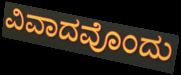
ವಿವಾದವೊಂದು